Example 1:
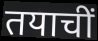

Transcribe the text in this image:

तयाचीं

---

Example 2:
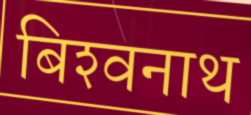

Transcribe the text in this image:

बिश्वनाथ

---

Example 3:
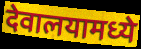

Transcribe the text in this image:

देवालयामध्ये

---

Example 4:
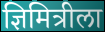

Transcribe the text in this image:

ज्ञिमित्रीला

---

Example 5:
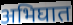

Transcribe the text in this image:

अभिघात